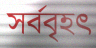
সৰ্ববৃহৎ